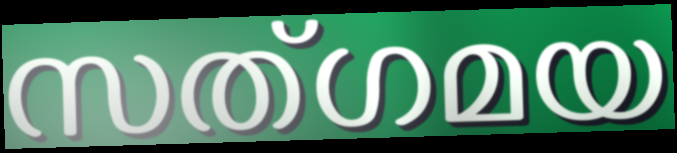
സത്ഗമയ